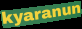
kyaranun